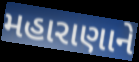
મહારાણાને